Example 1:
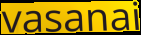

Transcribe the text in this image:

vasanai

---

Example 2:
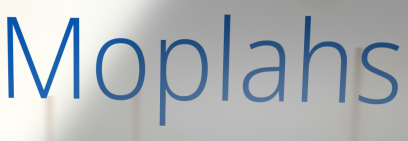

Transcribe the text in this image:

Moplahs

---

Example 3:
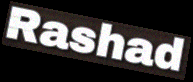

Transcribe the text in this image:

Rashad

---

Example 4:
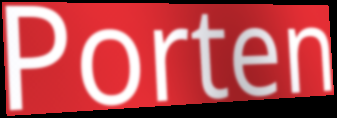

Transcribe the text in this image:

Porten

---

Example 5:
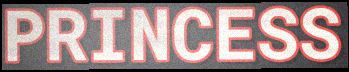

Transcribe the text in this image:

PRINCESS